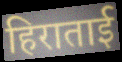
हिराताई